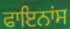
ਫਾਇਨਾਂਸ